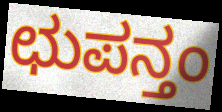
ಛುಪನ್ತಂ